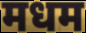
मधम